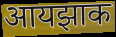
आयझाक